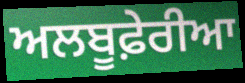
ਅਲਬੂਫ਼ੇਰੀਆ